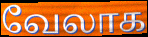
வேலாக